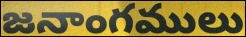
జనాంగములు